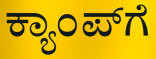
ಕ್ಯಾಂಪ್‍ಗೆ